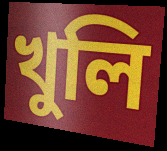
খুলি